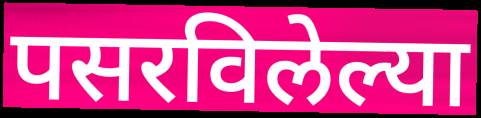
पसरविलेल्या